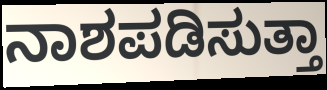
ನಾಶಪಡಿಸುತ್ತಾ